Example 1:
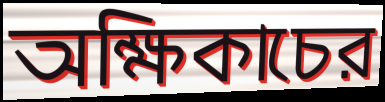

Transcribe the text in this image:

অক্ষিকাচের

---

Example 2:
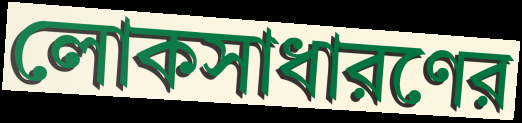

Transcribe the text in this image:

লোকসাধারণের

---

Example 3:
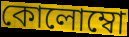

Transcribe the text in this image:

কোলোম্বো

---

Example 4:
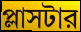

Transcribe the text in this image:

প্লাসটার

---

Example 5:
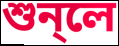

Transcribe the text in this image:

শুন্লে